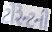
ટોરેન્ટની